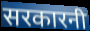
सरकारनी